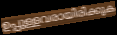
ഉപ്പുള്ളവരായിരിക്കുക